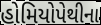
હોમિયોપેથીના